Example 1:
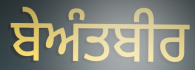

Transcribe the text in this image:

ਬੇਅੰਤਬੀਰ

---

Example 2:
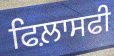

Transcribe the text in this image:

ਫਿਲ਼ਾਸਫੀ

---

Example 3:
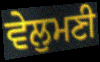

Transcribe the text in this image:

ਵੇਲੁਮਣੀ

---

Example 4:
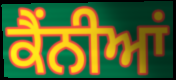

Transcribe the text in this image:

ਕੈਂਨੀਆਂ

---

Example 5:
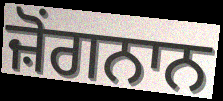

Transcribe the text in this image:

ਜ਼ੋਂਗਨਾਨ